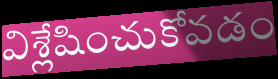
విశ్లేషించుకోవడం